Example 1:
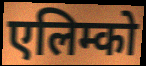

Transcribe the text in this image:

एलिम्को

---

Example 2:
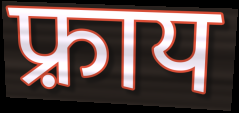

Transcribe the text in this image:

फ़्राय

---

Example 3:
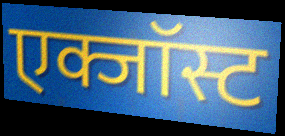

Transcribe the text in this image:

एक्जॉस्ट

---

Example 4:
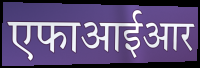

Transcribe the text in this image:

एफाआईआर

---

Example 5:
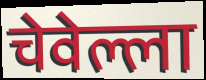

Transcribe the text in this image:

चेवेल्ला